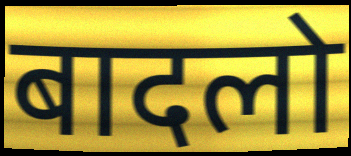
बादलो